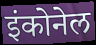
इंकोनेल